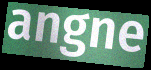
angne